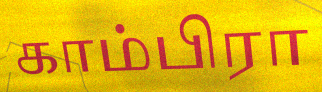
காம்பிரா